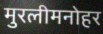
मुरलीमनोहर